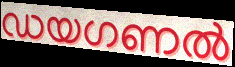
ഡയഗണൽ